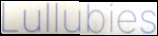
Lullubies